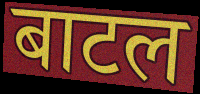
बाटल